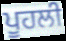
ਪੂਹਲੀ